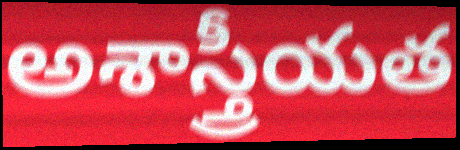
అశాస్త్రీయత